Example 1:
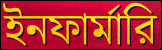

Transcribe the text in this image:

ইনফার্মারি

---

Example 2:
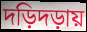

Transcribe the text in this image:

দড়িদড়ায়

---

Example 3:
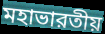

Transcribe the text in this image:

মহাভারতীয়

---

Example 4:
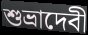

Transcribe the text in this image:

শুভ্রাদেবী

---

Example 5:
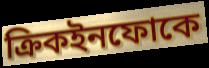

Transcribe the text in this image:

ক্রিকইনফোকে